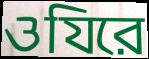
ওযিরে